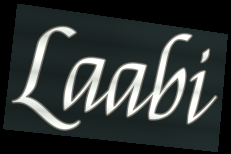
Laabi